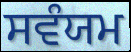
ਸਵੰਯਮ